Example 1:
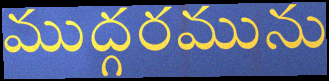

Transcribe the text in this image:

ముద్గరమును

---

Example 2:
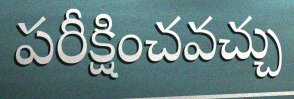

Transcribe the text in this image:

పరీక్షించవచ్చు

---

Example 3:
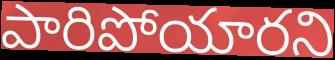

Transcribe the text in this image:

పారిపోయారని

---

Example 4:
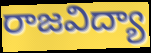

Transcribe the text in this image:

రాజవిద్యా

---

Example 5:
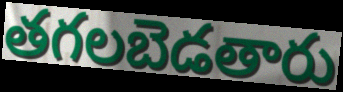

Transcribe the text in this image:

తగలబెడతారు